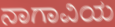
ನಾಗಾವಿಯ